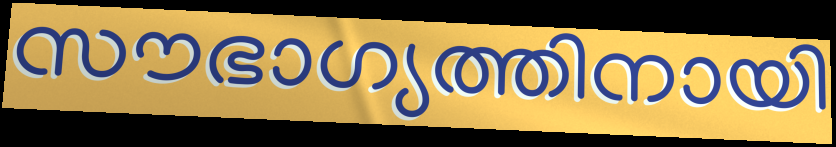
സൗഭാഗ്യത്തിനായി